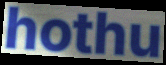
hothu